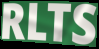
RLTS